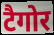
टैगोर